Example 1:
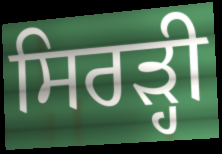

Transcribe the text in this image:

ਸਿਰੜ੍ਹੀ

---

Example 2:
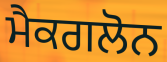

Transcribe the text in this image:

ਮੈਕਗਲੋਨ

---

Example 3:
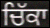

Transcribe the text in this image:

ਚਿੱਕਾ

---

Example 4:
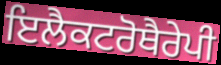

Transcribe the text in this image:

ਇਲੈਕਟਰੋਥੈਰੇਪੀ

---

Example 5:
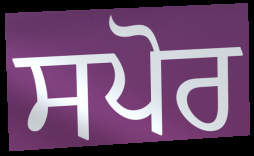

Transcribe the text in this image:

ਸਪੋਰ